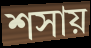
শসায়